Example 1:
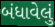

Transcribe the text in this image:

બંધાવેલું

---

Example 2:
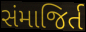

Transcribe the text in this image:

સંમાજિર્ત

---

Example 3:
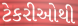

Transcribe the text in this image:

ટેકરીઓથી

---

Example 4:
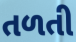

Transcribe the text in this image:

તળતી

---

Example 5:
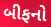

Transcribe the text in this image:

બીફનો